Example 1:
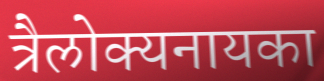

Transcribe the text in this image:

त्रैलोक्यनायका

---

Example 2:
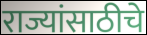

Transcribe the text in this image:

राज्यांसाठीचे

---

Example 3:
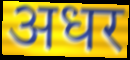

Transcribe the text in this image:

अधर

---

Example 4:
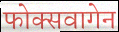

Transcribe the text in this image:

फोक्सवागेन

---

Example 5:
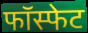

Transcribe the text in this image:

फॉस्फेट